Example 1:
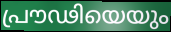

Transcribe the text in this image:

പ്രൗഢിയെയും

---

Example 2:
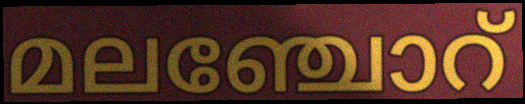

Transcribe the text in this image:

മലഞ്ചോറ്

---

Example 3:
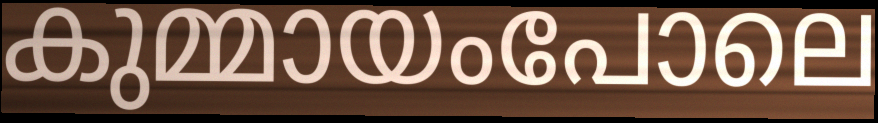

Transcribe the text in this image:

കുമ്മായംപോലെ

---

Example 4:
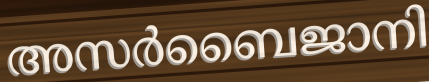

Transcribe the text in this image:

അസർബൈജാനി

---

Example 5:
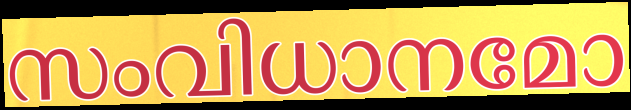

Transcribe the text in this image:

സംവിധാനമോ